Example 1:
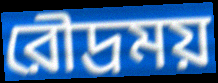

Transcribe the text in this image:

রৌদ্রময়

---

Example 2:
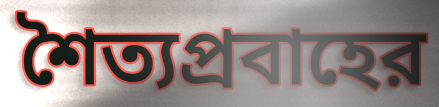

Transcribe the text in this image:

শৈত্যপ্রবাহের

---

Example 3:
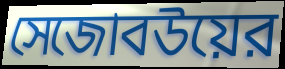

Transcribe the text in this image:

সেজোবউয়ের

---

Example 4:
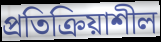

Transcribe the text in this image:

প্রতিক্রিয়াশীল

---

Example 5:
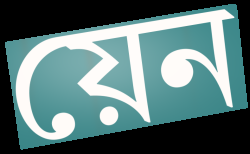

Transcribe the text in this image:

য়েন